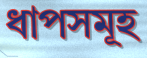
ধাপসমূহ